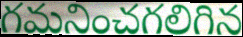
గమనించగలిగిన